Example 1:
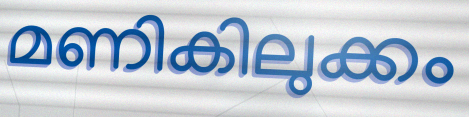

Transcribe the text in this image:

മണികിലുക്കം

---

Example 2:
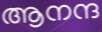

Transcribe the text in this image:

ആനന്ദ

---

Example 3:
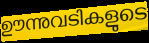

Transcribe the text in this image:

ഊന്നുവടികളുടെ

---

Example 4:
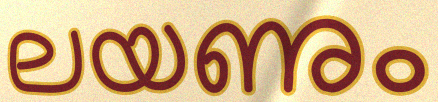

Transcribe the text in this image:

ലയണും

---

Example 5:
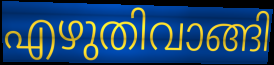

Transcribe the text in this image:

എഴുതിവാങ്ങി